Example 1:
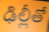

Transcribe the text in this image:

ఢిల్లీతో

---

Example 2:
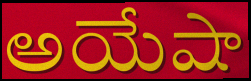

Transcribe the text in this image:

అయేషా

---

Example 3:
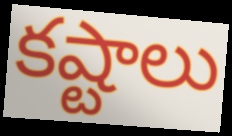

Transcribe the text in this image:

కష్టాలు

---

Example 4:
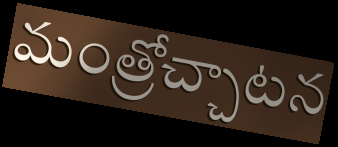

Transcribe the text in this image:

మంత్రోచ్చాటన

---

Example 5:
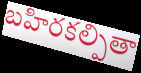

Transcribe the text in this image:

బహిరకల్పితా